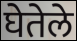
घेतेले